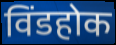
विंडहोक